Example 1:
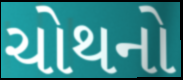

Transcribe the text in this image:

ચોથનો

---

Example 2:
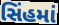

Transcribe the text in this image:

સિંહમાં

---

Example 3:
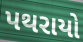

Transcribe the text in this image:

પથરાયો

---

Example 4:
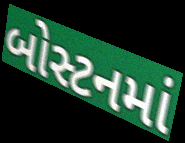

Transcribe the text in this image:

બોસ્ટનમાં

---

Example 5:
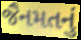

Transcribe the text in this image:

જૈનમતનું